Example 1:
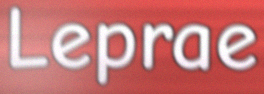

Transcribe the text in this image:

Leprae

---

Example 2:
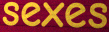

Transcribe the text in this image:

sexes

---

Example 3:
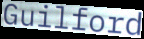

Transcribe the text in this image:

Guilford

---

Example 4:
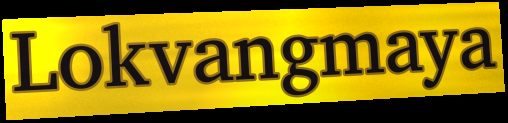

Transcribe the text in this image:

Lokvangmaya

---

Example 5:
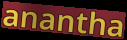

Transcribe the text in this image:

anantha